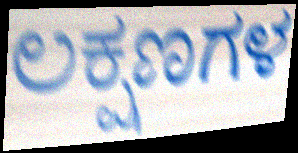
ಲಕ್ಷಣಗಳ